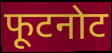
फूटनोट